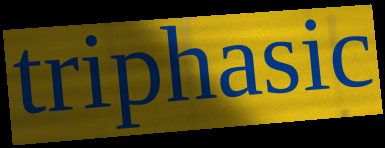
triphasic